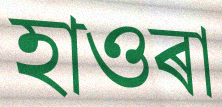
হাওৰা